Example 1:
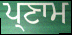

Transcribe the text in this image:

ਪ੍ਣਾਮ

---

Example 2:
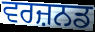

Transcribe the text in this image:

ਵਰਜ਼ਨਡ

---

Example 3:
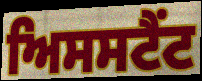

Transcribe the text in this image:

ਅਿਸਸਟੈਂਟ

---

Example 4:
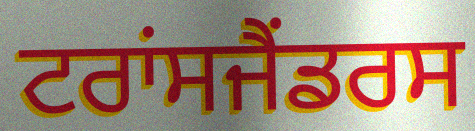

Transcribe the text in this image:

ਟਰਾਂਸਜੈਂਡਰਸ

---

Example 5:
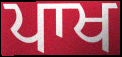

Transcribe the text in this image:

ਪਾਖ